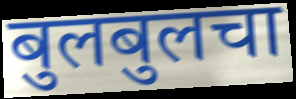
बुलबुलचा